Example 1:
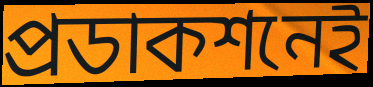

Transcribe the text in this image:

প্রডাকশনেই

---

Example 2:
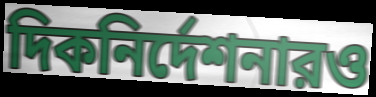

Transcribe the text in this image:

দিকনির্দেশনারও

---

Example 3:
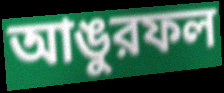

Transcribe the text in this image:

আঙুরফল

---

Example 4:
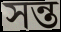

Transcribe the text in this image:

সন্ত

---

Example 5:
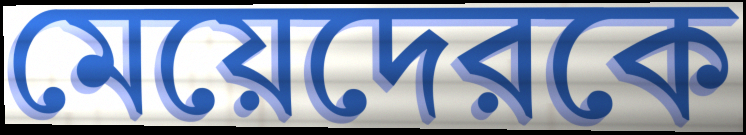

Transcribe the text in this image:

মেয়েদেরকে